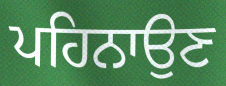
ਪਹਿਨਾਉਣ